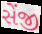
સેંજી